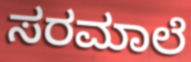
ಸರಮಾಲೆ